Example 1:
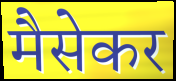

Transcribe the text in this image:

मैसेकर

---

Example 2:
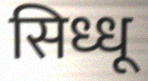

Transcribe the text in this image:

सिध्धू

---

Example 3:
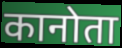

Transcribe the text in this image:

कानोता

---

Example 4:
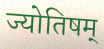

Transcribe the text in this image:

ज्योतिषम्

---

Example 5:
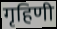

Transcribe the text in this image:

गृहिणी